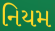
નિયમ